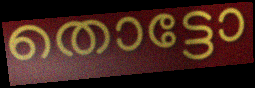
തൊട്ടോ